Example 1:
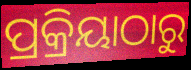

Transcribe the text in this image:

ପ୍ରକ୍ରିୟାଠାରୁ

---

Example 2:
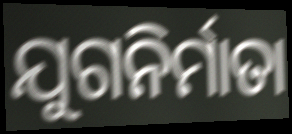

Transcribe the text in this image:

ଯୁଗନିର୍ମାତା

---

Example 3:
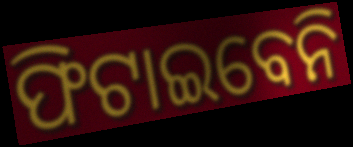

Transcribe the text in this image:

ଫିଟାଇବେନି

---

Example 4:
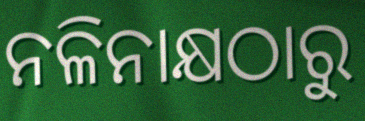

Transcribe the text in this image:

ନଳିନାକ୍ଷଠାରୁ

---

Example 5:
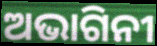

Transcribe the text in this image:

ଅଭାଗିନୀ